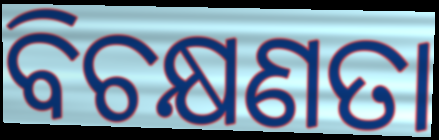
ବିଚକ୍ଷଣତା